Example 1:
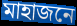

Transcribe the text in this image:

মাহাজনে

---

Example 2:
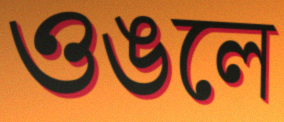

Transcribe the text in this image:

ওঙলে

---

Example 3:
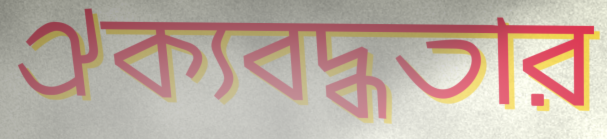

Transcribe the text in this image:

ঐক্যবদ্ধতার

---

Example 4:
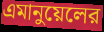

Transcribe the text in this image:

এমানুয়েলের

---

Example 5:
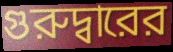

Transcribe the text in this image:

গুরুদ্বারের